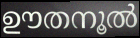
ഊതനൂൽ